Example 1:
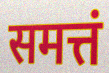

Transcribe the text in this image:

समत्तं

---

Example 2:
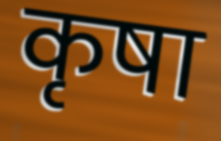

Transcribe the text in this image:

कृषा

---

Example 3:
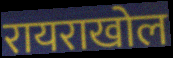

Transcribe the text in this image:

रायराखोल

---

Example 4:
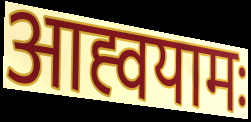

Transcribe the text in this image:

आह्वयामः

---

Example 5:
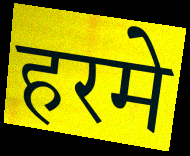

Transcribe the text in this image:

हरमे